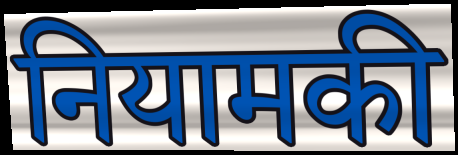
नियामकी